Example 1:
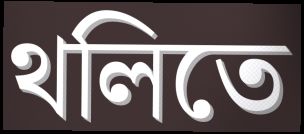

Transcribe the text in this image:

থলিতে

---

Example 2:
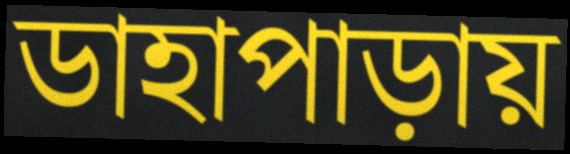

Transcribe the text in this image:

ডাহাপাড়ায়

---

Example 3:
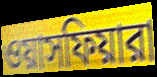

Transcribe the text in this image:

ওয়াসফিয়ারা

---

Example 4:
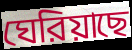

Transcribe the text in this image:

ঘেরিয়াছে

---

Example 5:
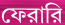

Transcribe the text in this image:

ফেরারি